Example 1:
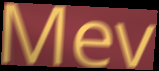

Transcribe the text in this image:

Mev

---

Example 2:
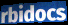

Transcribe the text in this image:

rbidocs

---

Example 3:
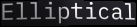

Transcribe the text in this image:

Elliptical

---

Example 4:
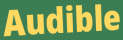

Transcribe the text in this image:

Audible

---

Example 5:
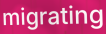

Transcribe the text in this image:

migrating